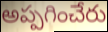
అప్పగించేరు